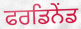
ਫਰਡਿਨੇਂਡ